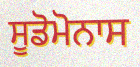
ਸੂਡੋਮੋਨਾਸ